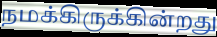
நமக்கிருக்கின்றது